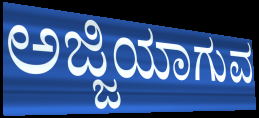
ಅಜ್ಜಿಯಾಗುವ